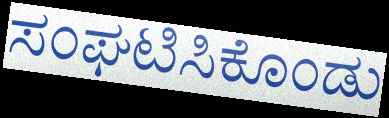
ಸಂಘಟಿಸಿಕೊಂಡು